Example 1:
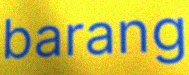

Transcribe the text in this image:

barang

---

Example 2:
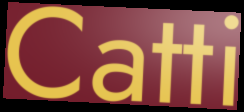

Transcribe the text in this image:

Catti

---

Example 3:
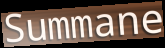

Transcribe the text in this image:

Summane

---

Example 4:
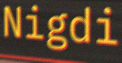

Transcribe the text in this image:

Nigdi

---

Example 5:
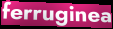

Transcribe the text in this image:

ferruginea